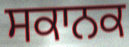
ਸਕਾਨਕ